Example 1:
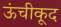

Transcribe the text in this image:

ऊंचीकूद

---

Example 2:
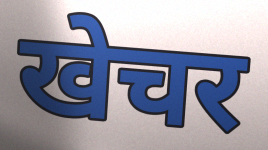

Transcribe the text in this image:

खेचर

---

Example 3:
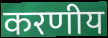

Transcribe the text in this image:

करणीय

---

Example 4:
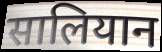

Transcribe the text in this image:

सालियान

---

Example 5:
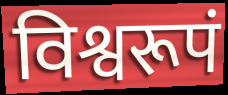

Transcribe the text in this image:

विश्वरूपं